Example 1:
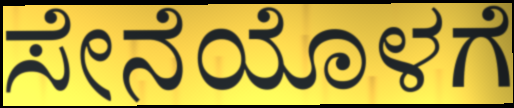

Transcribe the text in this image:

ಸೇನೆಯೊಳಗೆ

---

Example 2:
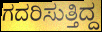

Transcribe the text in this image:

ಗದರಿಸುತ್ತಿದ್ದ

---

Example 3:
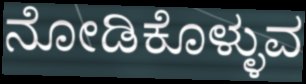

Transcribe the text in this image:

ನೋಡಿಕೊಳ್ಳುವ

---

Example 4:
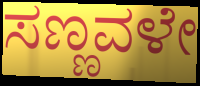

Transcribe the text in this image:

ಸಣ್ಣವಳೇ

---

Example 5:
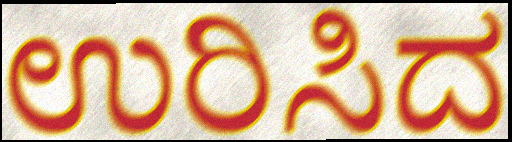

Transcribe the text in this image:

ಉರಿಸಿದ